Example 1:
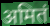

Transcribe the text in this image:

अमितं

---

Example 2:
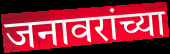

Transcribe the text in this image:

जनावरांच्या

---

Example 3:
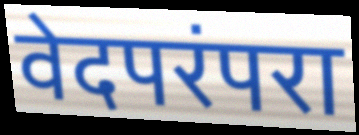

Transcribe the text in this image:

वेदपरंपरा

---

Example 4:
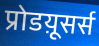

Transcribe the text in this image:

प्रोडय़ूसर्स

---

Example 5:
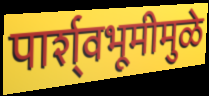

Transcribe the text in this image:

पार्श्वभूमीमुळे